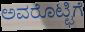
ಅವರೊಟ್ಟಿಗೆ